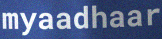
myaadhaar